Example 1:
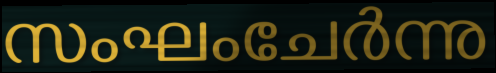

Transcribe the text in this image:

സംഘംചേർന്നു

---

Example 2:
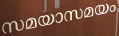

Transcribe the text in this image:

സമയാസമയം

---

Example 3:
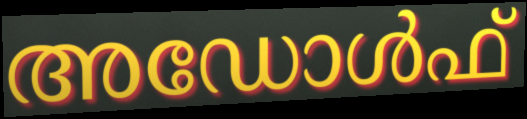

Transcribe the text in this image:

അഡോൾഫ്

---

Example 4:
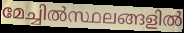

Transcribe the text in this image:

മേച്ചിൽസ്ഥലങ്ങളിൽ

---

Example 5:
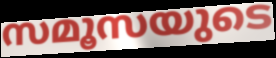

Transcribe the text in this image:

സമൂസയുടെ